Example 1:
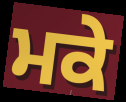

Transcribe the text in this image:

ਮਕੇ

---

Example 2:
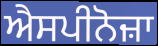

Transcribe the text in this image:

ਐਸਪੀਨੋਜ਼ਾ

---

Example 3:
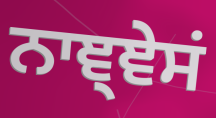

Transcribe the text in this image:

ਨਾਞ੍ਞੇਸਂ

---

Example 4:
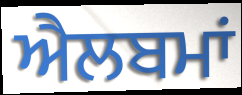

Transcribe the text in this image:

ਐਲਬਮਾਂ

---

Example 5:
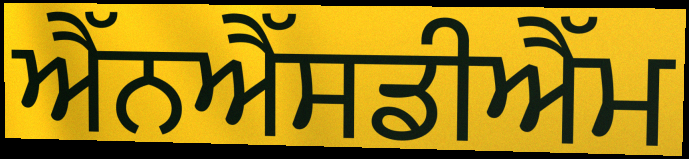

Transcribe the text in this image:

ਐੱਨਐੱਸਡੀਐੱਮ